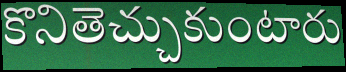
కొనితెచ్చుకుంటారు